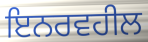
ਇਨਰਵਹੀਲ